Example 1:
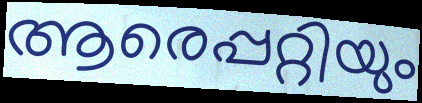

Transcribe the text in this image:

ആരെപ്പറ്റിയും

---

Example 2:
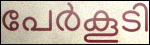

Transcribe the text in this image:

പേർകൂടി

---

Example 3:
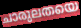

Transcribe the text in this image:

ചാരുലതയെ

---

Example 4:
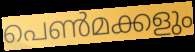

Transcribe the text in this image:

പെൺമക്കളും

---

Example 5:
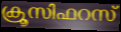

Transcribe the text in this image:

ക്രൂസിഫറസ്